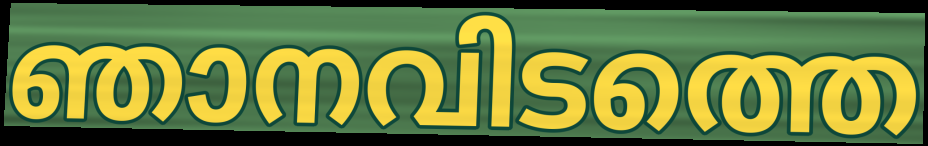
ഞാനവിടത്തെ